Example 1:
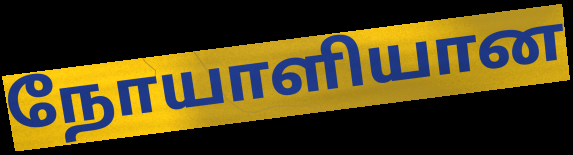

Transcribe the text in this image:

நோயாளியான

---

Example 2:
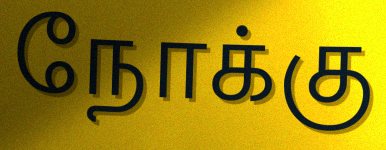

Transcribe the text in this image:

நோக்கு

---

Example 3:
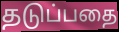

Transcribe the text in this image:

தடுப்பதை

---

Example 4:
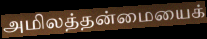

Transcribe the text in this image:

அமிலத்தன்மையைக்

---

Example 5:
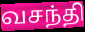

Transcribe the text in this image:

வசந்தி